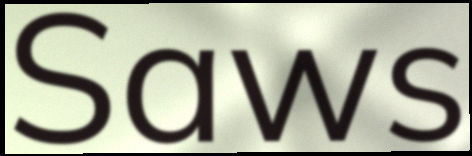
Saws